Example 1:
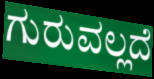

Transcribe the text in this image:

ಗುರುವಲ್ಲದೆ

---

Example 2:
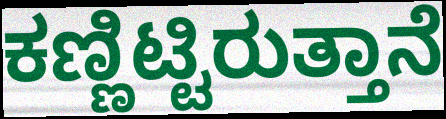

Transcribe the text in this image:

ಕಣ್ಣಿಟ್ಟಿರುತ್ತಾನೆ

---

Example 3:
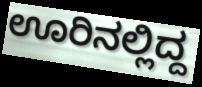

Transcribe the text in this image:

ಊರಿನಲ್ಲಿದ್ದ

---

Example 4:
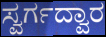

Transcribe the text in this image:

ಸ್ವರ್ಗದ್ವಾರ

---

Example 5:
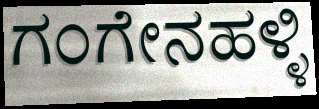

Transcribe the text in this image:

ಗಂಗೇನಹಳ್ಳಿ